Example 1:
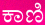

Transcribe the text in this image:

ಕಾಣಿ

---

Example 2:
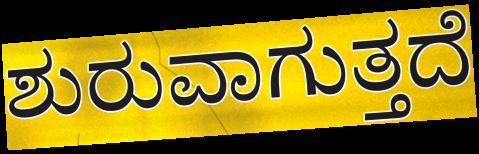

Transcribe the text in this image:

ಶುರುವಾಗುತ್ತದೆ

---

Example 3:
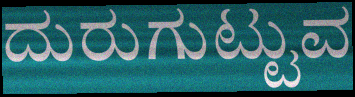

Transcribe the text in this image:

ದುರುಗುಟ್ಟುವ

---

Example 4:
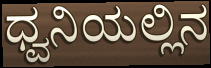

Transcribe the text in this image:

ಧ್ವನಿಯಲ್ಲಿನ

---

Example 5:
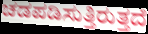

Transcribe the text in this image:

ಚಡಪಡಿಸುತ್ತಿರುತ್ತದೆ